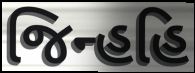
જિન્હહિ